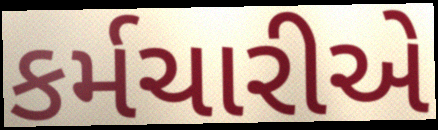
કર્મચારીએ